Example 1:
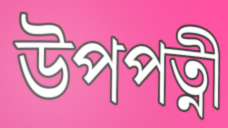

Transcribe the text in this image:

উপপত্নী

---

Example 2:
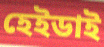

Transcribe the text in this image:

হেইডাই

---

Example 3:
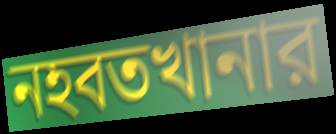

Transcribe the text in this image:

নহবতখানার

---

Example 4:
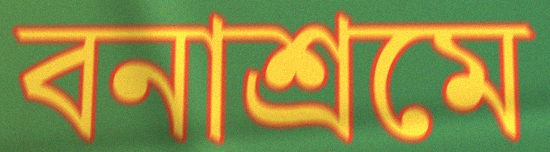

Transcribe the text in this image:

বনাশ্রমে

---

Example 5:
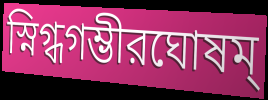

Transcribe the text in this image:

স্নিগ্ধগম্ভীরঘোষম্